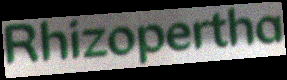
Rhizopertha